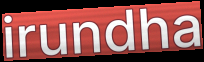
irundha